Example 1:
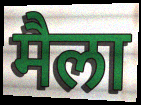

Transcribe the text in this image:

मैला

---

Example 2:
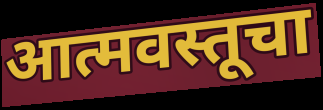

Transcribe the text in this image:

आत्मवस्तूचा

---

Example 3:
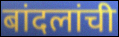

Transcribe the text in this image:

बांदलांची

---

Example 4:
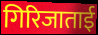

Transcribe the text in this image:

गिरिजाताई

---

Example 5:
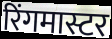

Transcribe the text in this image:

रिंगमास्टर